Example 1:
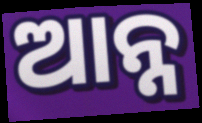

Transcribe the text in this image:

ଆନ୍ନ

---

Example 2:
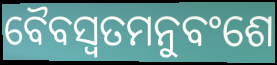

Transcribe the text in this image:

ବୈବସ୍ଵତମନୁବଂଶେ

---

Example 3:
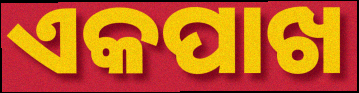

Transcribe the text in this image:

ଏକପାଖ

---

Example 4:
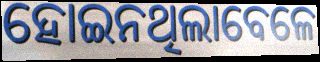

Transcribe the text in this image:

ହୋଇନଥିଲାବେଳେ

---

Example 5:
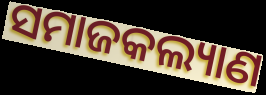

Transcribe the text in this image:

ସମାଜକଲ୍ୟାଣ